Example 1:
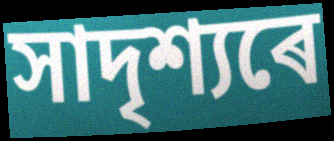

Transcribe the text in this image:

সাদৃশ্যৰে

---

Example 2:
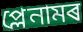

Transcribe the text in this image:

প্লেনামৰ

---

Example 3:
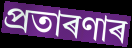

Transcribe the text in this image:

প্ৰতাৰণাৰ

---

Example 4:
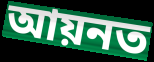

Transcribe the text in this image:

আয়নত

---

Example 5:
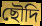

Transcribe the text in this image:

ছৌদি